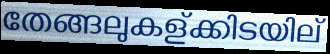
തേങ്ങലുകള്ക്കിടയില്